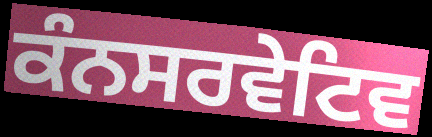
ਕੰਨਸਰਵੇਟਿਵ